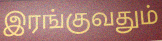
இரங்குவதும்